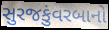
સુરજકુંવરબાનો